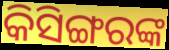
କିସିଙ୍ଗରଙ୍କ